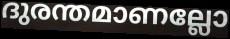
ദുരന്തമാണല്ലോ